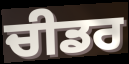
ਚੀਡਰ